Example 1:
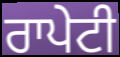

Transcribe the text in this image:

ਰਾਪੇਟੀ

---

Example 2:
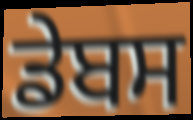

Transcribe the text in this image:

ਡੇਬਸ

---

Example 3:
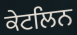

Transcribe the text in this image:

ਕੇਟਲਿਨ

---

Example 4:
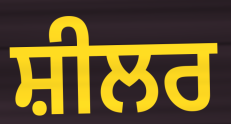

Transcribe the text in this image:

ਸ਼ੀਲਰ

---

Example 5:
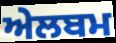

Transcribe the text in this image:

ਅੇਲਬਮ